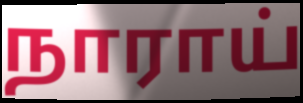
நாராய்